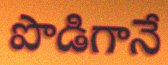
పొడిగానే